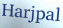
Harjpal